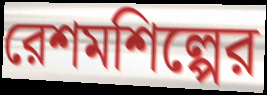
রেশমশিল্পের